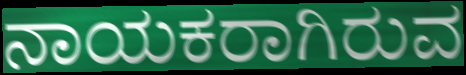
ನಾಯಕರಾಗಿರುವ